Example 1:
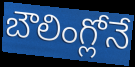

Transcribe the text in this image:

బౌలింగ్లోనే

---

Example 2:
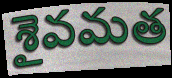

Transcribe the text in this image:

శైవమత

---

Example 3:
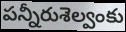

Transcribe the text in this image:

పన్నీరుశెల్వంకు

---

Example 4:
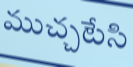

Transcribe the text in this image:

ముచ్చటేసి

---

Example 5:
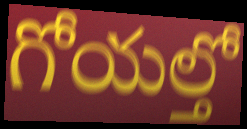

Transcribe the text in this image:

గోయల్తో